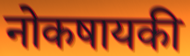
नोकषायकी